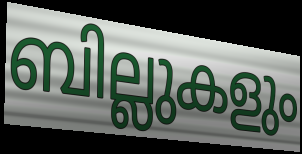
ബില്ലുകളും